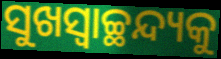
ସୁଖସ୍ଵାଚ୍ଛନ୍ଦ୍ୟକୁ